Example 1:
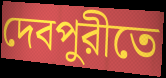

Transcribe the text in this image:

দেবপুরীতে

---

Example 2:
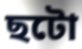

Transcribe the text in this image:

ছটো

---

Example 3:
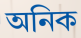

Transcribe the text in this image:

অনিক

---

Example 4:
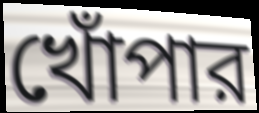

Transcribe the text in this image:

খোঁপার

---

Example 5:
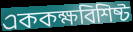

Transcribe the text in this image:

এককক্ষবিশিষ্ট